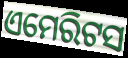
ଏମେରିଟସ